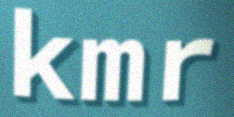
kmr